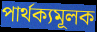
পার্থক্যমূলক